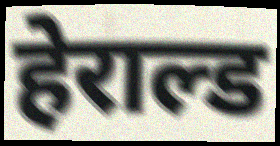
हेराल्ड